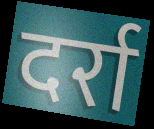
दर्रा